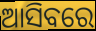
ଆସିବରେ